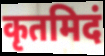
कृतमिदं